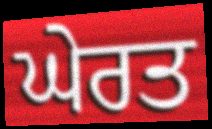
ਘੇਰਤ